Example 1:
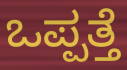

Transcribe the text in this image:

ಒಪ್ಪತ್ತೆ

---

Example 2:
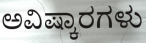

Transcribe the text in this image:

ಅವಿಷ್ಕಾರಗಳು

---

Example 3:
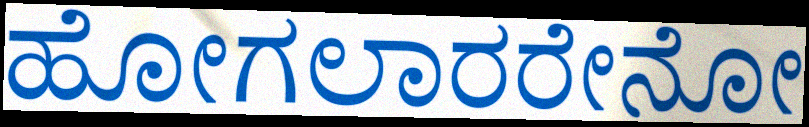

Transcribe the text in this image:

ಹೋಗಲಾರರೇನೋ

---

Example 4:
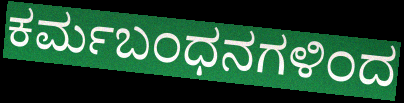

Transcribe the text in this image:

ಕರ್ಮಬಂಧನಗಳಿಂದ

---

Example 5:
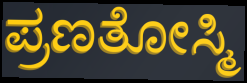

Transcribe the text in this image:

ಪ್ರಣತೋಸ್ಮಿ